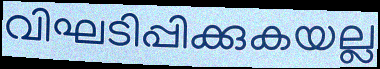
വിഘടിപ്പിക്കുകയല്ല